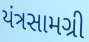
યંત્રસામગ્રી